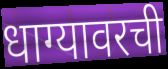
धाग्यावरची